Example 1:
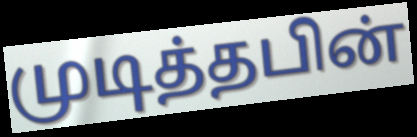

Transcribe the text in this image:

முடித்தபின்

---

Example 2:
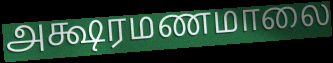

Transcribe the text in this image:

அக்ஷரமணமாலை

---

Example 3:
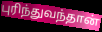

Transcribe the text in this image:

புரிந்துவந்தான்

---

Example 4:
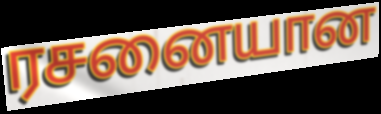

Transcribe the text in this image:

ரசனையான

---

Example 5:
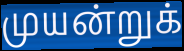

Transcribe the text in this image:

முயன்றுக்